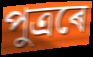
পুত্ৰৰে